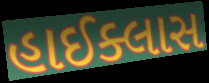
હાઈક્લાસ